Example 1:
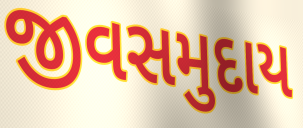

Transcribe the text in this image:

જીવસમુદાય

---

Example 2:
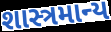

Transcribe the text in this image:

શાસ્ત્રમાન્ય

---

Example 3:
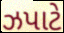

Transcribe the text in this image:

ઝપાટે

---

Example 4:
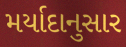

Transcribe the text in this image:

મર્યાદાનુસાર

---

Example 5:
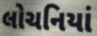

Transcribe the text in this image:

લોચનિયાં